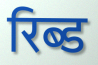
रिब्ड